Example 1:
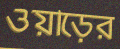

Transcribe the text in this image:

ওয়াড়ের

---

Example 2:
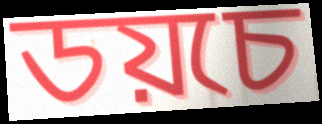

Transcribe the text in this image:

ডয়চে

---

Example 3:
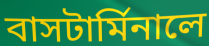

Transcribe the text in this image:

বাসটার্মিনালে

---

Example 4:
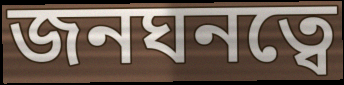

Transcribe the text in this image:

জনঘনত্বে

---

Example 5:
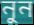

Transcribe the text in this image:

নুন